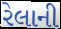
રેલાની